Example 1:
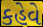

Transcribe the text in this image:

કહેવે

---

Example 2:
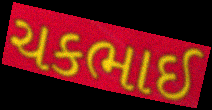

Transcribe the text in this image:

ચકભાઈ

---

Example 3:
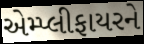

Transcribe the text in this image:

એમ્પ્લીફાયરને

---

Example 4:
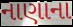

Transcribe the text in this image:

નાણાના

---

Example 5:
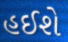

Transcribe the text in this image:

હઈશે